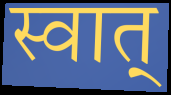
स्वात्